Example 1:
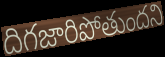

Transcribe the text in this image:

దిగజారిపోతుందని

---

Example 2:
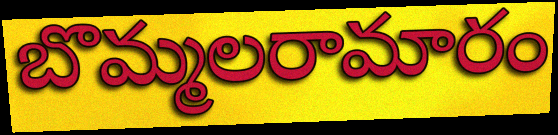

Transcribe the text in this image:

బొమ్మలరామారం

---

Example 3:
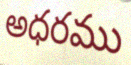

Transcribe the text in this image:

అధరము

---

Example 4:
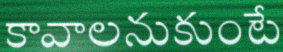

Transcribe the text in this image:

కావాలనుకుంటే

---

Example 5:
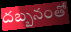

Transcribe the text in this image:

దబ్బనంతో